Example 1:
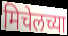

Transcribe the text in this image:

मिचेलच्या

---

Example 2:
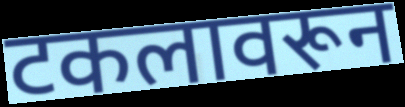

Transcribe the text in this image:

टकलावरून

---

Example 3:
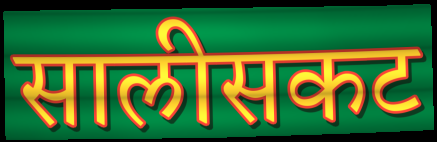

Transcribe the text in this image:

सालीसकट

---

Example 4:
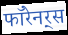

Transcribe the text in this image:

फॉरेनर्स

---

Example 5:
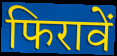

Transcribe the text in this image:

फिरावें